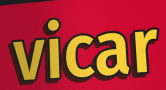
vicar